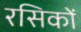
रसिकों